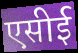
एसीई